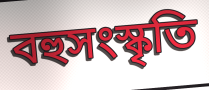
বহুসংস্কৃতি